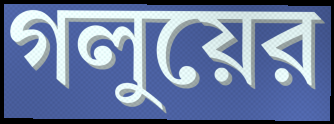
গলুয়ের